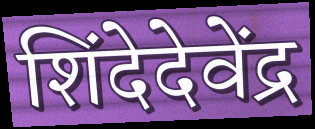
शिंदेदेवेंद्र